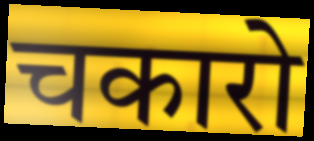
चकारो